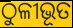
ଠୁଳୀଭୂତ